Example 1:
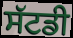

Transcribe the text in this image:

ਸੱਟਡੀ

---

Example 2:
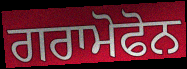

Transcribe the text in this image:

ਗਰਾਮੋਫੋਨ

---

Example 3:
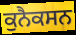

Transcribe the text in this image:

ਕੁਨੈਕਸਨ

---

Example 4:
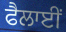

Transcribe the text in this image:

ਫੈਲਾਈਂ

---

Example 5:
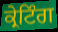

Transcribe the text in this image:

ਕ੍ਰੇਟਿੰਗ